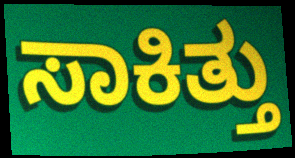
ಸಾಕಿತ್ತು